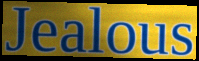
Jealous